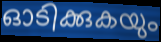
ഓടിക്കുകയും